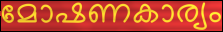
മോഷണകാര്യം